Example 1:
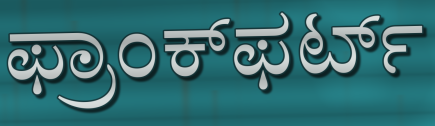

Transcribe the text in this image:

ಫ್ರಾಂಕ್‌ಫರ್ಟ್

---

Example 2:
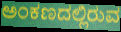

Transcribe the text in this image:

ಅಂಕಣದಲ್ಲಿರುವ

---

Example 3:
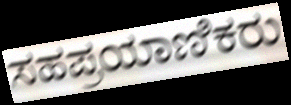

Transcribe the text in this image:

ಸಹಪ್ರಯಾಣಿಕರು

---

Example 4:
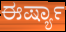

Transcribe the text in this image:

ಈರ್ಷ್ಯಾ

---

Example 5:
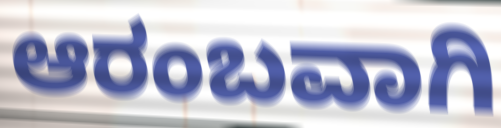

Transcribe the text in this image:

ಆರಂಬವಾಗಿ